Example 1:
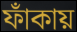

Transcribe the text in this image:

ফাঁকায়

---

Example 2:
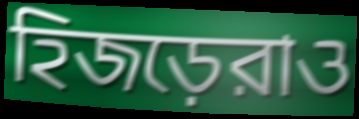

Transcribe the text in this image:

হিজড়েরাও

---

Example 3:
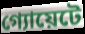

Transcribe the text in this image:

গ্যোয়েটে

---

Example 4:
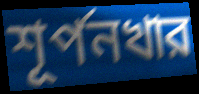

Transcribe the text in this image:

শূর্পনখার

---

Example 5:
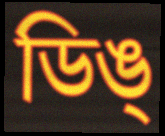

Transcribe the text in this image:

ডিঙ্